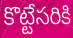
కొట్టేసరికి